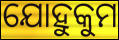
ଯୋହୁକୁମ